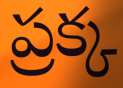
ప్రక్క